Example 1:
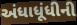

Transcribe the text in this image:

અંધાધૂંધીની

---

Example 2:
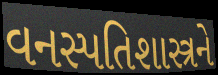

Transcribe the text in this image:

વનસ્પતિશાસ્ત્રને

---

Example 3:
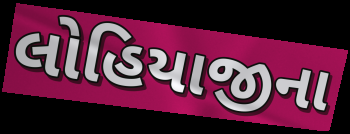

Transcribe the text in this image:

લોહિયાજીના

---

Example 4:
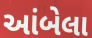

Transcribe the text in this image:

આંબેલા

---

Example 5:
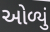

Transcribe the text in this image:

ઓળ્યું